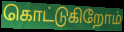
கொட்டுகிறோம்